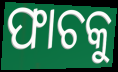
ଫାଚକୁ